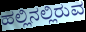
ಹಲ್ಲಿನಲ್ಲಿರುವ